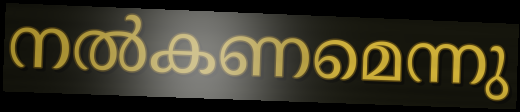
നൽകണമെന്നു